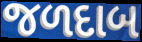
જળદાબ